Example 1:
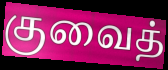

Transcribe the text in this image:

குவைத்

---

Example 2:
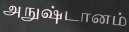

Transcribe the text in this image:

அநுஷ்டானம்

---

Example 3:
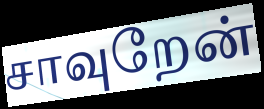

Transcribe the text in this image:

சாவுறேன்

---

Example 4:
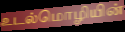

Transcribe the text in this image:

உடல்மொழியின்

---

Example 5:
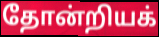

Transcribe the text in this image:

தோன்றியக்